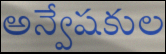
అన్వేషకుల